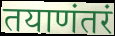
तयाणंतरं